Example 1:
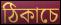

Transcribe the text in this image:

ঠিকাচে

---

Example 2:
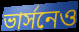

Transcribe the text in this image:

ভার্সনেও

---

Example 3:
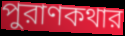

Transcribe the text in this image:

পুরাণকথার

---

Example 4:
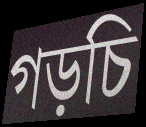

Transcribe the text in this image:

গড়চি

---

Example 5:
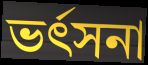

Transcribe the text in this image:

ভর্ৎসনা